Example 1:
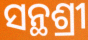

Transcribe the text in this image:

ସନ୍ଥଶ୍ରୀ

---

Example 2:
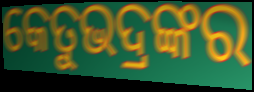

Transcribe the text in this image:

କେତୁଭଦ୍ରଙ୍କର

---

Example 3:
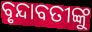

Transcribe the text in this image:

ବୃନ୍ଦାବତୀଙ୍କୁ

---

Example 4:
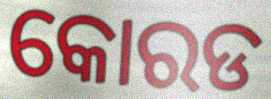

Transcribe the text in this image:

କୋରଡ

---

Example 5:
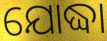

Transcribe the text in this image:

ଯୋଦ୍ଧା